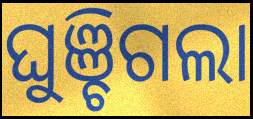
ଘୁଞ୍ଚିଗଲା